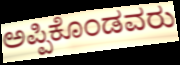
ಅಪ್ಪಿಕೊಂಡವರು